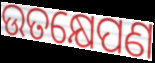
ଉତକ୍ଷେପଣ